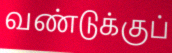
வண்டுக்குப்